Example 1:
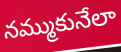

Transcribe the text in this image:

నమ్ముకునేలా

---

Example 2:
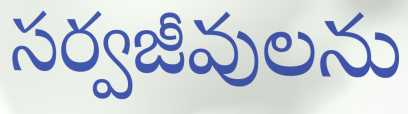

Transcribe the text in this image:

సర్వజీవులను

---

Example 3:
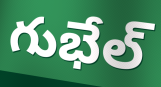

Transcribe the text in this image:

గుభేల్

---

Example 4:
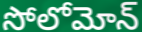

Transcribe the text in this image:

సోలోమోన్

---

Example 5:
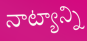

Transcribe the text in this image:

నాట్యాన్ని